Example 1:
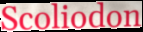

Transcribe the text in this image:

Scoliodon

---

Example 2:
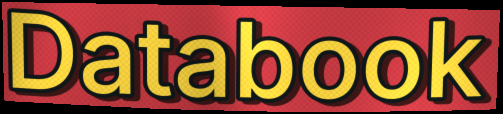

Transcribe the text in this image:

Databook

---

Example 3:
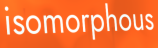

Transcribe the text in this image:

isomorphous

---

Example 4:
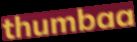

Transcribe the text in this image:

thumbaa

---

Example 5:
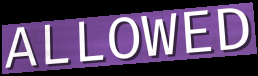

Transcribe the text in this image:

ALLOWED